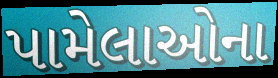
પામેલાઓના